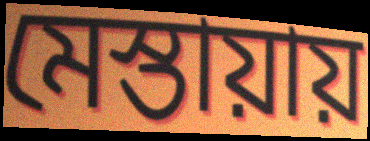
মেস্তায়ায়